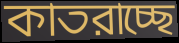
কাতরাচ্ছে